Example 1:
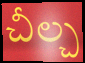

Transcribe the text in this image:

చీల్చ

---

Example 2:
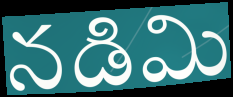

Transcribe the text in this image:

నడిమి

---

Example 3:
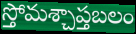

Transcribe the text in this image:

స్తోమశ్చాప్తబలం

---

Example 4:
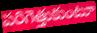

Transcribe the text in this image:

పరిగెత్తుకుంటూ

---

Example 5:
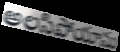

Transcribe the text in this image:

అలసిపోయాను